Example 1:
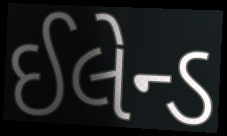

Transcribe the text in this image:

ઈલેન્ડ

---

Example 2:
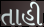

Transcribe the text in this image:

તાહી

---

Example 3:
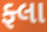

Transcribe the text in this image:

ફ્લા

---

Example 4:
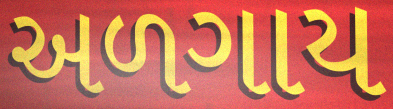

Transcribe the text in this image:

અળગાય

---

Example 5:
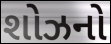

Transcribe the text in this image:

શોઝનો